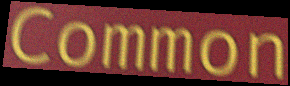
Common